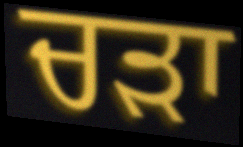
ਚੜਾ